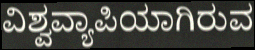
ವಿಶ್ವವ್ಯಾಪಿಯಾಗಿರುವ